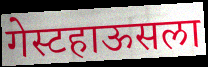
गेस्टहाऊसला